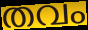
തവം